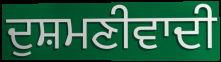
ਦੁਸ਼ਮਣੀਵਾਦੀ